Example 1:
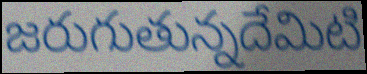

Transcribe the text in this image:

జరుగుతున్నదేమిటి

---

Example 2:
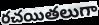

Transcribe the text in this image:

రచయితలుగా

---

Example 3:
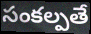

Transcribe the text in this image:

సంకల్పతే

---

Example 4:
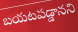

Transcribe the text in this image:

బయటపడ్డానని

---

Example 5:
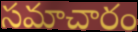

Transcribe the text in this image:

సమాచారం